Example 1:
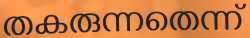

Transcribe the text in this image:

തകരുന്നതെന്ന്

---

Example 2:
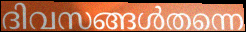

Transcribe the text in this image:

ദിവസങ്ങൾതന്നെ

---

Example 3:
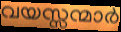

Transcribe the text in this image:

വയസ്സന്മാർ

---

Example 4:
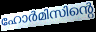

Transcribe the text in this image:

ഹോർമിസിന്റെ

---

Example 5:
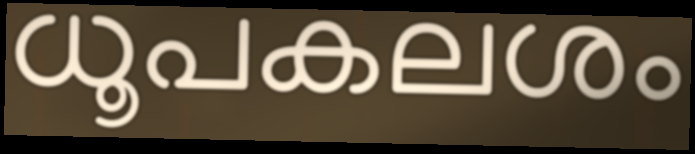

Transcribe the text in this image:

ധൂപകലശം